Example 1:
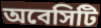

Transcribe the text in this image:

অবেসিটি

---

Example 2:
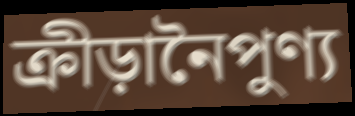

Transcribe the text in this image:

ক্রীড়ানৈপুণ্য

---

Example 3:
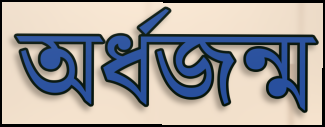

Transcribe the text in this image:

অর্ধজন্ম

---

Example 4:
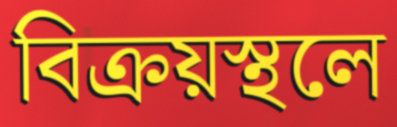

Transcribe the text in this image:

বিক্রয়স্থলে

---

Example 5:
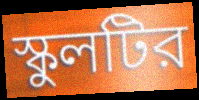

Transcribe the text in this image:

স্কুলটির